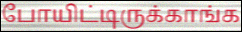
போயிட்டிருக்காங்க